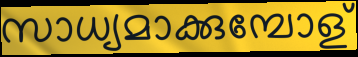
സാധ്യമാക്കുമ്പോള്